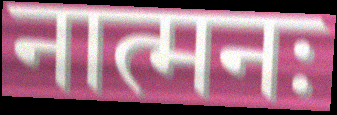
नात्मनः